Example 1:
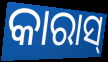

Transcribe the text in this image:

କାରାସ୍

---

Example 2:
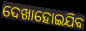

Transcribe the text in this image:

ଦେଖାହୋଇଯିବ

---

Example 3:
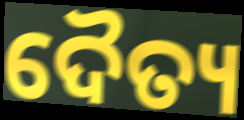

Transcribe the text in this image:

ଦୈତ୍ୟ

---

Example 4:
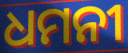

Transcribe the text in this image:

ଧମନୀ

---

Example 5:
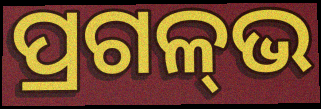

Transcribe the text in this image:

ପ୍ରଗଳ୍‌ଭ